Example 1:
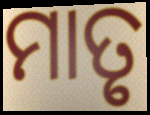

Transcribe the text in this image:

ମାତୃ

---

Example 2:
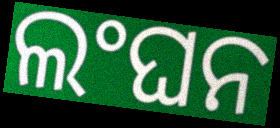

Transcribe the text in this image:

ଲଂଘନ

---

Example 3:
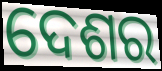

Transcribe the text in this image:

ଦେଶର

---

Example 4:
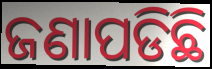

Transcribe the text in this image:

ଜଣାପଡିଛି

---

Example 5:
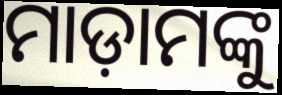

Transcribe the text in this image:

ମାଡ଼ାମଙ୍କୁ